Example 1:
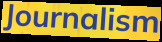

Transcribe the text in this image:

Journalism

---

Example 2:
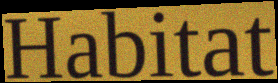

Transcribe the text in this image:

Habitat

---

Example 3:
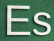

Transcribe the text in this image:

Es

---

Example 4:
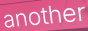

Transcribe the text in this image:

another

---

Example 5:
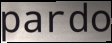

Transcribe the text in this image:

pardo